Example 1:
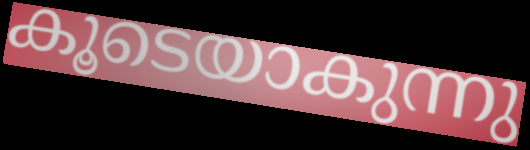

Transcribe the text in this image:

കൂടെയാകുന്നു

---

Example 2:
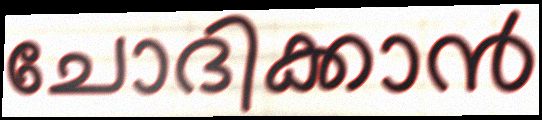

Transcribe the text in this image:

ചോദിക്കാൻ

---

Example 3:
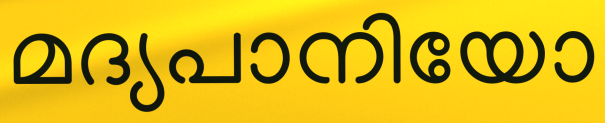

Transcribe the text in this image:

മദ്യപാനിയോ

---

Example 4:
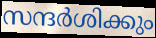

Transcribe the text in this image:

സന്ദർശിക്കും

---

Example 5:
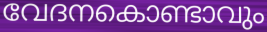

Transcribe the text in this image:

വേദനകൊണ്ടാവും